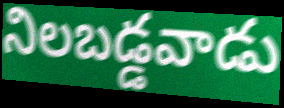
నిలబడ్డవాడు